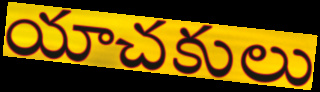
యాచకులు